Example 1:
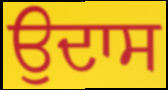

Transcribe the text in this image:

ਉਦਾਸ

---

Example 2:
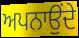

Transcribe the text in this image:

ਅਪਨਾਉਂਦੇ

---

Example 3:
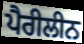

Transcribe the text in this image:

ਪੈਰੀਲੀਨ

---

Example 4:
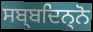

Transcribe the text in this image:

ਸਬ੍ਬਦਿਨ੍ਨੋ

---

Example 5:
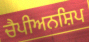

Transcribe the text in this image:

ਚੈਪੀਅਨਸ਼ਿਪ